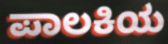
ಪಾಲಕಿಯ